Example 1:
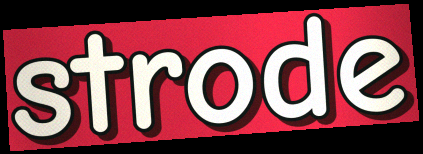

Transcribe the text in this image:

strode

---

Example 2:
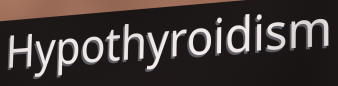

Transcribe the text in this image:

Hypothyroidism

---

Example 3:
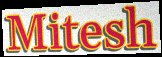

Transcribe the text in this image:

Mitesh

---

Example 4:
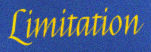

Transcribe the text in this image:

Limitation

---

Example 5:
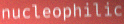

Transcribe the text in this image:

nucleophilic